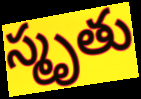
స్మృతు